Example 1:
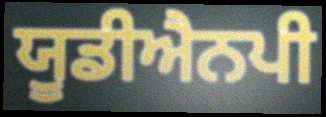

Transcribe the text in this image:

ਯੂਡੀਐਨਪੀ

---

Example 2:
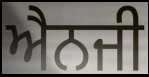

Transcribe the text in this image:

ਐਨਜੀ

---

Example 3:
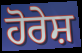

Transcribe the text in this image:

ਹੋਰੇਸ਼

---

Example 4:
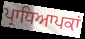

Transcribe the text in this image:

ਪ੍ਰਾਧਿਆਪਕਾਂ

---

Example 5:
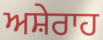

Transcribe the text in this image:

ਅਸ਼ੇਰਾਹ